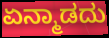
ಏನ್ಮಾಡದು